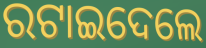
ରଟାଇଦେଲେ